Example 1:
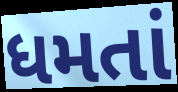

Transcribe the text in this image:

ધમતાં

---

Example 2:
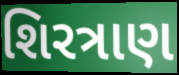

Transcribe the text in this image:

શિરત્રાણ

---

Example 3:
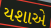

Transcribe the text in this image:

યશાએ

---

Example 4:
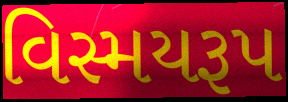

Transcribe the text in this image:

વિસ્મયરૂપ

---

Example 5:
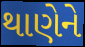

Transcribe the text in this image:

થાણેને